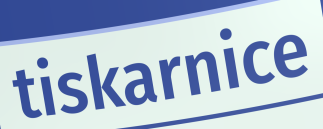
tiskarnice